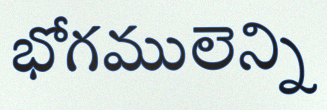
భోగములెన్ని